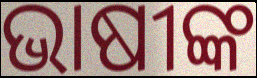
ଭାଷୀଙ୍କ